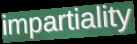
impartiality